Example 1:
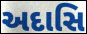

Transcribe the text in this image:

અદાસિ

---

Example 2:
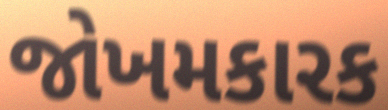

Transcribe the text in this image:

જોખમકારક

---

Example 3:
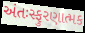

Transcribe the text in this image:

અંતઃસ્ફુરણાત્મક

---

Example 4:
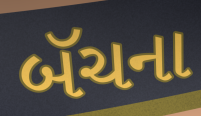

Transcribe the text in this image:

બૅચના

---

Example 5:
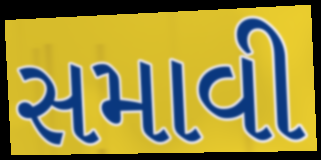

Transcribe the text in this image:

સમાવી